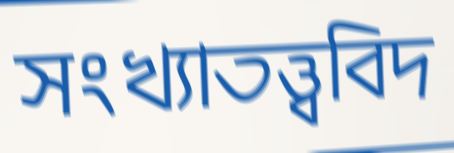
সংখ্যাতত্ত্ববিদ